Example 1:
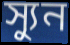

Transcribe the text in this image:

স্যুন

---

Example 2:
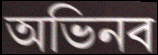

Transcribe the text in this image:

অভিনব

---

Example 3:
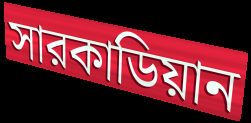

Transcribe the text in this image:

সারকাডিয়ান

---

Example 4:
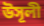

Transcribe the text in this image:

উসূলী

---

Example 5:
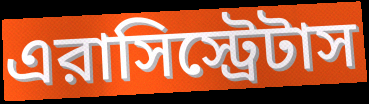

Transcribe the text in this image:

এরাসিস্ট্রেটাস